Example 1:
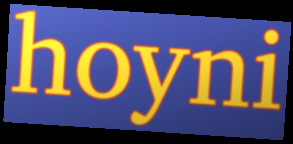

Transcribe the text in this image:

hoyni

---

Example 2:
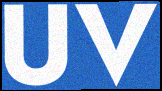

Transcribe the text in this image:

UV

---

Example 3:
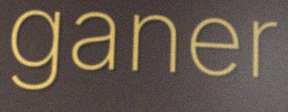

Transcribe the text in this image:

ganer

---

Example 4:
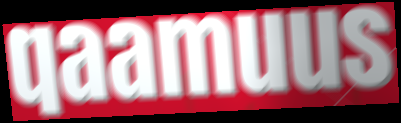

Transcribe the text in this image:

qaamuus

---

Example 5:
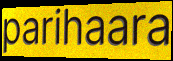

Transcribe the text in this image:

parihaara